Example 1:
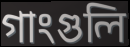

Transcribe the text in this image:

গাংগুলি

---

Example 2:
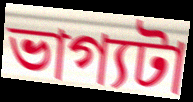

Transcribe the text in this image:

ভাগ্যটা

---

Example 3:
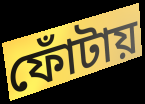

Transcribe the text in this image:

ফোঁটায়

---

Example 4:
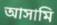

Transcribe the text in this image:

আসামি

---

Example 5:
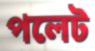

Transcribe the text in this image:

পলেট